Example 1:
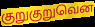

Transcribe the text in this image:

குறுகுறுவென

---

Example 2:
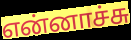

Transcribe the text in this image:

என்னாச்சு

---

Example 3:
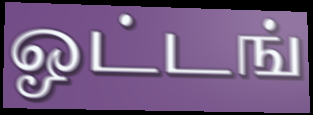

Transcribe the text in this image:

ஓட்டங்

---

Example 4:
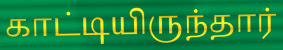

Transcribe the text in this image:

காட்டியிருந்தார்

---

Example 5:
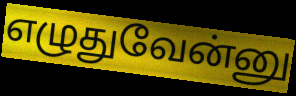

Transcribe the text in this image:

எழுதுவேன்னு